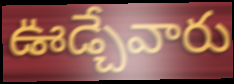
ఊడ్చేవారు